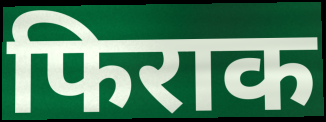
फिराक